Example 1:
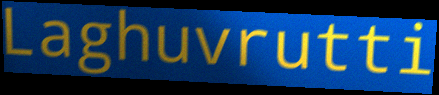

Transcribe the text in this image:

Laghuvrutti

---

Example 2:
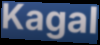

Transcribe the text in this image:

Kagal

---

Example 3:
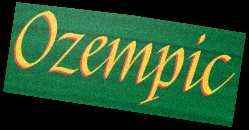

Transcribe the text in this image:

Ozempic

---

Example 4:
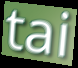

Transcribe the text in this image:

tai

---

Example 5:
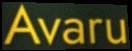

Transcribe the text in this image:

Avaru